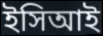
ইসিআই